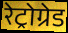
रेट्रोग्रेड